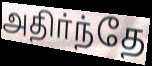
அதிர்ந்தே